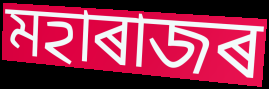
মহাৰাজৰ